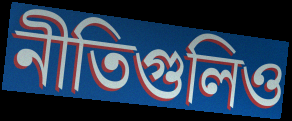
নীতিগুলিও